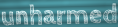
unharmed